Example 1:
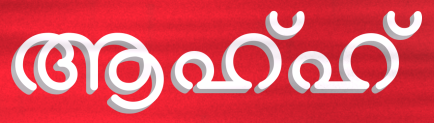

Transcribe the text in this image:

ആഹ്ഹ്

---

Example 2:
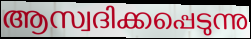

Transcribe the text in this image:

ആസ്വദിക്കപ്പെടുന്നു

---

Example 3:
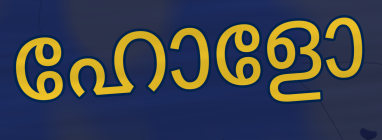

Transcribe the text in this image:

ഹോളോ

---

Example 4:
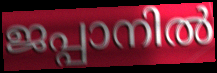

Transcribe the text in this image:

ജപ്പാനിൽ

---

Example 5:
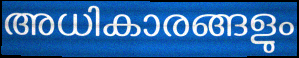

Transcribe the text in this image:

അധികാരങ്ങളും